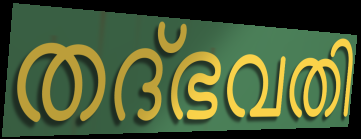
തദ്ഭവതി